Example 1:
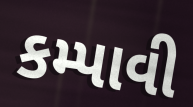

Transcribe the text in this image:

કમ્પાવી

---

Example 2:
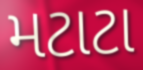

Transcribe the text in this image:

મટાટા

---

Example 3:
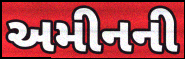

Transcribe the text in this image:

અમીનની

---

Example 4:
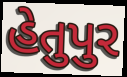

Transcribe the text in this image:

હેતુપુર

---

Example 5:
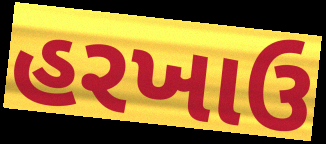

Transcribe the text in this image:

હરખાઉ